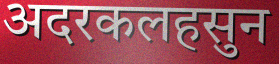
अदरकलहसुन